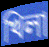
খিলা